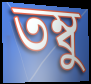
তম্বু